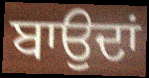
ਬਾਉਦਾਂ